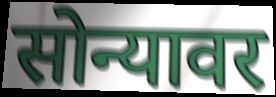
सोन्यावर